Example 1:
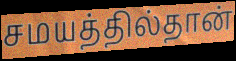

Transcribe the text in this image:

சமயத்தில்தான்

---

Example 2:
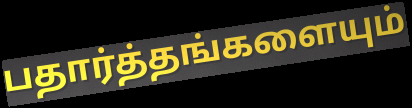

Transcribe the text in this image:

பதார்த்தங்களையும்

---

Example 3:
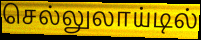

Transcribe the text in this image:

செல்லுலாய்டில்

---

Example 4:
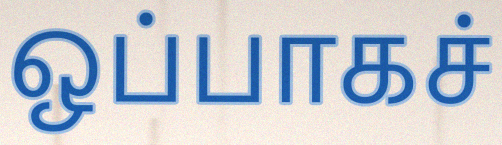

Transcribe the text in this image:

ஒப்பாகச்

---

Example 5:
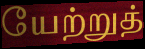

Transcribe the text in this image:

யேற்றுத்